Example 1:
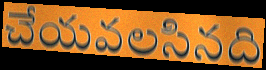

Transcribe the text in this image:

చేయవలసినది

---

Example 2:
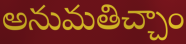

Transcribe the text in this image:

అనుమతిచ్చాం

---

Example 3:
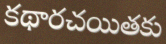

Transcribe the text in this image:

కథారచయితకు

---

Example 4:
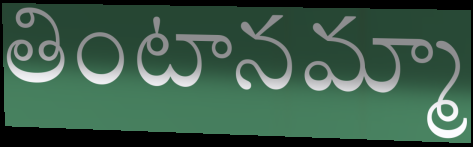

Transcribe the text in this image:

తింటానమ్మా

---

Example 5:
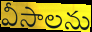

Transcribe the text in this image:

వీసాలను